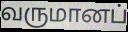
வருமானப்